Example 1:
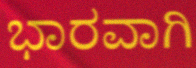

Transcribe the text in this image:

ಭಾರವಾಗಿ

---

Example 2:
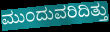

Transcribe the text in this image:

ಮುಂದುವರಿದಿತ್ತು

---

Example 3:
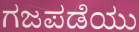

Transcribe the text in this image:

ಗಜಪಡೆಯು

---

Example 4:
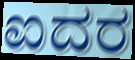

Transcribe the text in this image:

ಐದರ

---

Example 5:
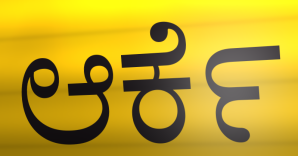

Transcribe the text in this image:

ಆರ್ಕೆ